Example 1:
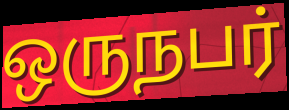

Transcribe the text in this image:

ஒருநபர்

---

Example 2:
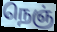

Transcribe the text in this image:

நெஞ்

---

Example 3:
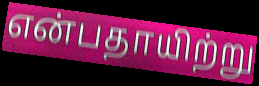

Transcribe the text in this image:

என்பதாயிற்று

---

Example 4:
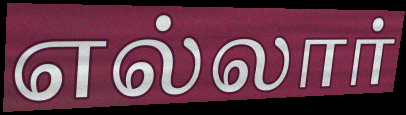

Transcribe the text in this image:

எல்லார்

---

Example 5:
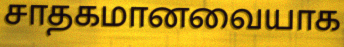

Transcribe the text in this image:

சாதகமானவையாக